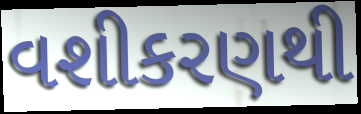
વશીકરણથી